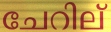
ചേറില്